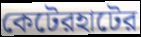
কেটেরহাটের